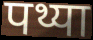
पथ्या